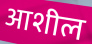
आशील